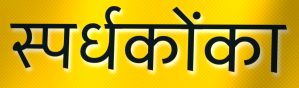
स्पर्धकोंका